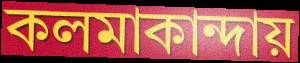
কলমাকান্দায়